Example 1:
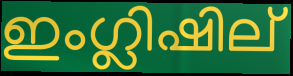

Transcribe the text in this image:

ഇംഗ്ലിഷില്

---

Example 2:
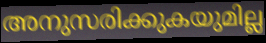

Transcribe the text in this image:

അനുസരിക്കുകയുമില്ല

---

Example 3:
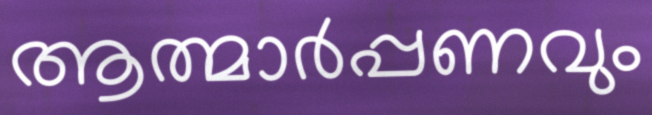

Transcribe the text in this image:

ആത്മാർപ്പണവും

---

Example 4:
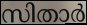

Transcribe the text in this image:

സിതാർ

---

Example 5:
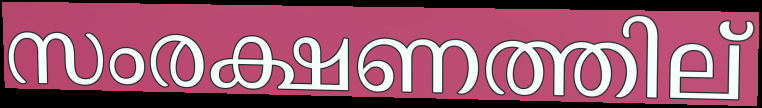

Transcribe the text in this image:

സംരക്ഷണത്തില്